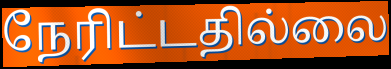
நேரிட்டதில்லை